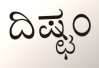
ದಿಷ್ಟಂ